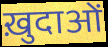
ख़ुदाओं